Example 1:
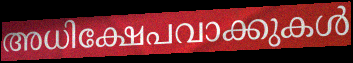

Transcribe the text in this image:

അധിക്ഷേപവാക്കുകൾ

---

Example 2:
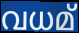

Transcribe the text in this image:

വധമ്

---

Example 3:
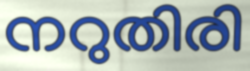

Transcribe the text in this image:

നറുതിരി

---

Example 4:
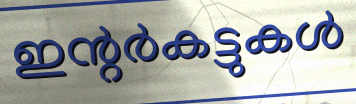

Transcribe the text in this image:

ഇന്റർകട്ടുകൾ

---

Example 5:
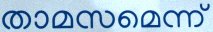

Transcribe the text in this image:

താമസമെന്ന്